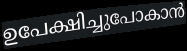
ഉപേക്ഷിച്ചുപോകാൻ